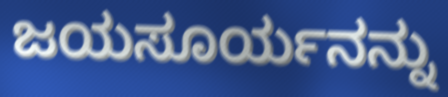
ಜಯಸೂರ್ಯನನ್ನು